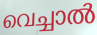
വെച്ചാൽ